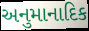
અનુમાનાદિક